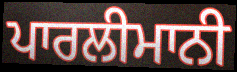
ਪਾਰਲੀਮਾਨੀ